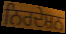
ਨਿਰਦੇਸ਼ਨ